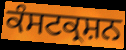
ਕੰਸਟਕ੍ਰਸ਼ਨ